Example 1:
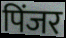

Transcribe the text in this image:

पिंजर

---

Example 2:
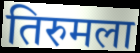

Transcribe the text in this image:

तिरुमला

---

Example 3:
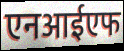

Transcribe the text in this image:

एनआईएफ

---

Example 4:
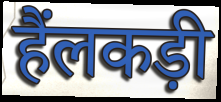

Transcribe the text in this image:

हैंलकड़ी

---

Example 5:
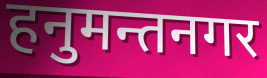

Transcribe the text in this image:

हनुमन्तनगर